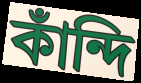
কাঁন্দি